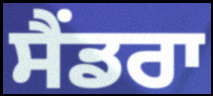
ਸੈਂਡਰਾ